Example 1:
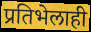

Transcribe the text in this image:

प्रतिभेलाही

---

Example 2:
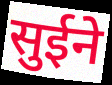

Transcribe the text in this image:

सुईने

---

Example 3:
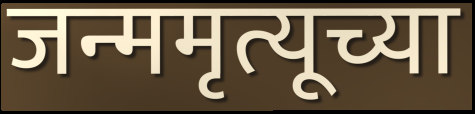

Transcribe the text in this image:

जन्ममृत्यूच्या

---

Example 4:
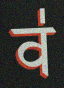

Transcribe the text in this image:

व॑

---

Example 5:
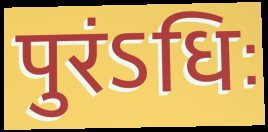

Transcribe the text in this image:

पुरंऽधिः